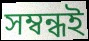
সম্বন্ধই